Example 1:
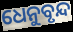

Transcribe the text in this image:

ଧେନୁବୃନ୍ଦ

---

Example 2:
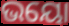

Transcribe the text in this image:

ଭୟୋ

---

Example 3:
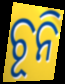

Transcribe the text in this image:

ଚୂନି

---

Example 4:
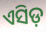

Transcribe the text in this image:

ଏସିଡ଼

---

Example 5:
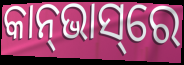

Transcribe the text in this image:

କାନ୍‌ଭାସ୍‌ରେ